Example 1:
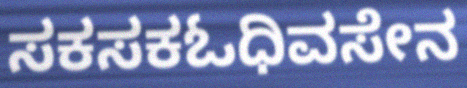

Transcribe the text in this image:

ಸಕಸಕಓಧಿವಸೇನ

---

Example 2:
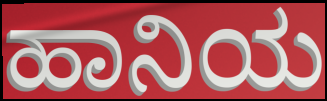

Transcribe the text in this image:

ಹಾನಿಯ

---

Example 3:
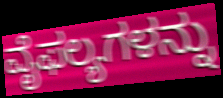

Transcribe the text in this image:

ವೈಫಲ್ಯಗಳನ್ನು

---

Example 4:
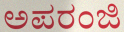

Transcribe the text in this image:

ಅಪರಂಜಿ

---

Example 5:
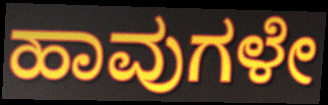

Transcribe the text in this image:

ಹಾವುಗಳೇ